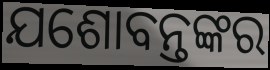
ଯଶୋବନ୍ତଙ୍କର